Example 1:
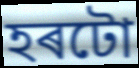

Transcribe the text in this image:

হৰটো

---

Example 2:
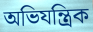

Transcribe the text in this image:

অভিযন্ত্ৰিক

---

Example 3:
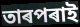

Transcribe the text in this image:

তাৰপৰাই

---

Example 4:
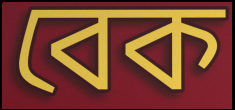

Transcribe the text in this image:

বেক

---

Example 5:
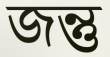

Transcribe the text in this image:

জন্তু